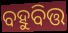
ବହୁବିତ୍ତ